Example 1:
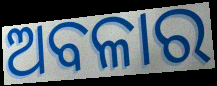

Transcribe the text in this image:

ଅବଳାର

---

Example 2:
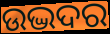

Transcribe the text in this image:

ଉଦ୍ଭଦର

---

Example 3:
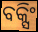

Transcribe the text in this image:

ବକ୍ସିଂ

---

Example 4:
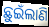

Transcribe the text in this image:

ଛୁଇଁଲାଣି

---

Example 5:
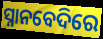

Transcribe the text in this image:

ସ୍ନାନବେଦିରେ